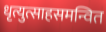
धृत्युत्साहसमन्वित